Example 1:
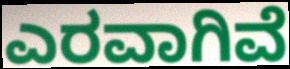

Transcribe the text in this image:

ಎರವಾಗಿವೆ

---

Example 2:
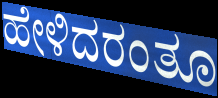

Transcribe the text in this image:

ಹೇಳಿದರಂತೂ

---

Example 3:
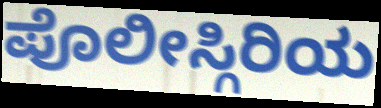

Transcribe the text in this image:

ಪೊಲೀಸ್ಗಿರಿಯ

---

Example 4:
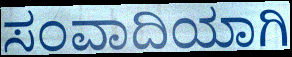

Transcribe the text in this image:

ಸಂವಾದಿಯಾಗಿ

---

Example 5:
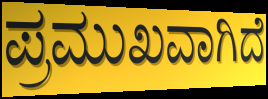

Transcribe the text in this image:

ಪ್ರಮುಖವಾಗಿದೆ